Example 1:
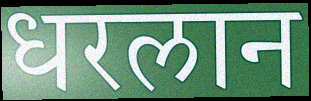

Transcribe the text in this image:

धरलान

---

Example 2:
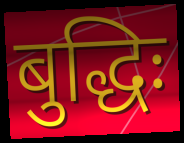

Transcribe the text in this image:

बुद्धिः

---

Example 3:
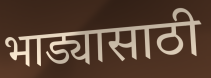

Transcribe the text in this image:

भाड्यासाठी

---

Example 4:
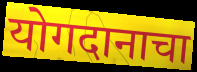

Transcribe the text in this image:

योगदानाचा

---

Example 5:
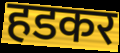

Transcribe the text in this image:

हडकर